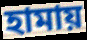
হামায়